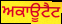
ਅਕਾਊਟੈਟ